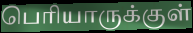
பெரியாருக்குள்